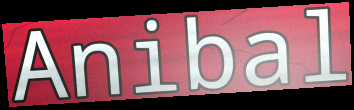
Anibal